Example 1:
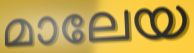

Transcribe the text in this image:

മാലേയ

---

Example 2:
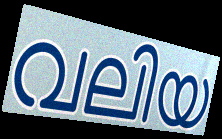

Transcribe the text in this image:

വലിയ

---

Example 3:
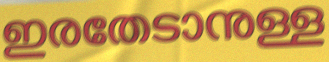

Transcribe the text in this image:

ഇരതേടാനുള്ള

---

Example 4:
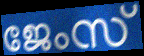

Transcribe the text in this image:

ജേംസ്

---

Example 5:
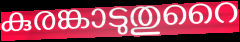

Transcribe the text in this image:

കുരങ്കാടുതുറൈ